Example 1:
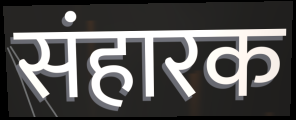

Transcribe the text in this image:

संहारक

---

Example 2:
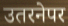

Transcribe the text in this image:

उतरनेपर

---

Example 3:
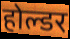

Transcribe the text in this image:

होल्डर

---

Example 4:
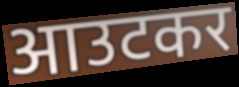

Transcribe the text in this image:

आउटकर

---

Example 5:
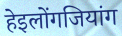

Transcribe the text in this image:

हेइलोंगजियांग